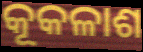
କୂକଳାଶ